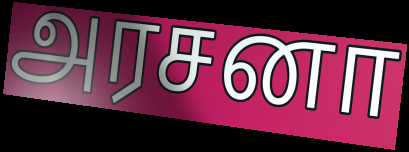
அரசனா